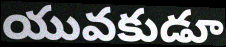
యువకుడూ